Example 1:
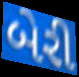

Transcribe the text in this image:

બેરી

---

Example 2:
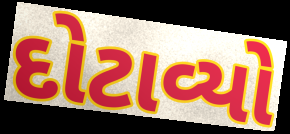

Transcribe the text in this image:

દોટાવ્યો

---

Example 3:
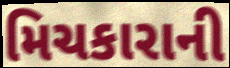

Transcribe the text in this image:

મિચકારાની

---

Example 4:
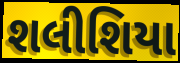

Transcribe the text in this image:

શલીશિયા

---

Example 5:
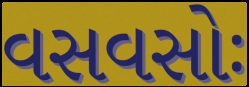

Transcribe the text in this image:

વસવસોઃ